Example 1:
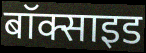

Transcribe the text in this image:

बॉक्साइड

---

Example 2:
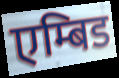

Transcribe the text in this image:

एम्बिड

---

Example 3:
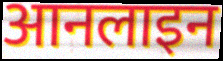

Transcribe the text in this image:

आनलाइन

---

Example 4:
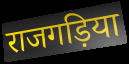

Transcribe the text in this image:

राजगड़िया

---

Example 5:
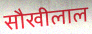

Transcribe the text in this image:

सौखीलाल